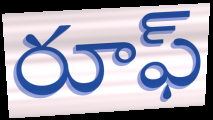
రూఫ్